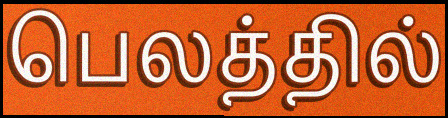
பெலத்தில்